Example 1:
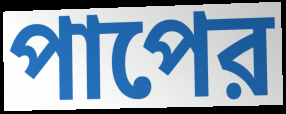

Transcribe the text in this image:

পাপের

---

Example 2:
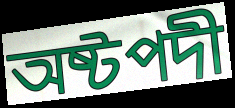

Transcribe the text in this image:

অষ্টপদী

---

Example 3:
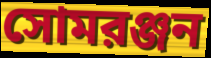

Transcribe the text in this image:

সোমরঞ্জন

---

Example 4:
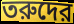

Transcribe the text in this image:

তরুদের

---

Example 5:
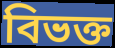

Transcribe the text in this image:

বিভক্ত